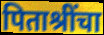
पिताश्रींचा